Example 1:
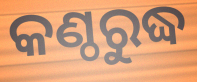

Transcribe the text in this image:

କଣ୍ଠରୁଦ୍ଧ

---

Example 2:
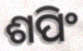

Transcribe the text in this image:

ଶପିଂ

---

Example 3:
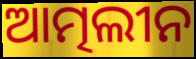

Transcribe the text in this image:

ଆତ୍ମଲୀନ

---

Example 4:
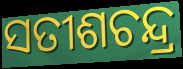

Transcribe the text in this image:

ସତୀଶଚନ୍ଦ୍ର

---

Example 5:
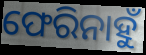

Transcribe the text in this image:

ଫେରିନାହୁଁ